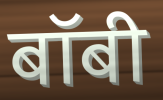
बॉबी